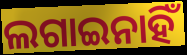
ଲଗାଇନାହିଁ